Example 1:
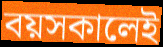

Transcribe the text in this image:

বয়সকালেই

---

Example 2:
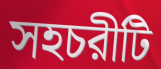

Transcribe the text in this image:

সহচরীটি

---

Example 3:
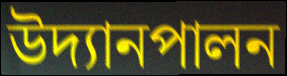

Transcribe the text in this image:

উদ্যানপালন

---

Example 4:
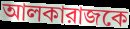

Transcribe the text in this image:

আলকারাজকে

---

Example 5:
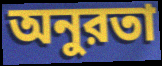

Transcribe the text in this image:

অনুরতা